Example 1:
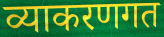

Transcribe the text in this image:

व्याकरणगत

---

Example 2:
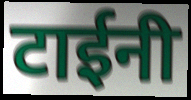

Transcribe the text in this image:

टाईनी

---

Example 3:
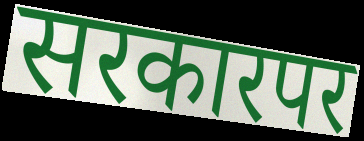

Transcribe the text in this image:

सरकारपर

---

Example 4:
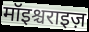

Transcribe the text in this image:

मॉइश्चराइज़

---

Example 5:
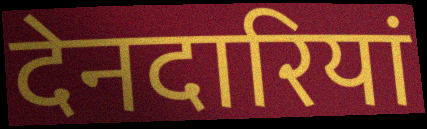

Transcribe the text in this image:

देनदारियां